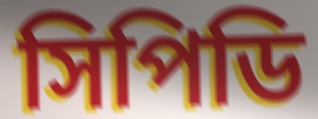
সিপিডি